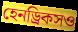
হেনড্রিকসও